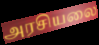
அரசியலை